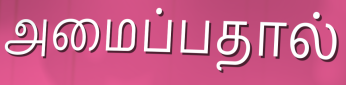
அமைப்பதால்